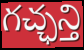
గచ్ఛన్తి